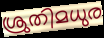
ശ്രുതിമധുര